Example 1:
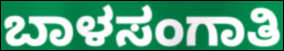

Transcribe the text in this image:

ಬಾಳಸಂಗಾತಿ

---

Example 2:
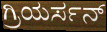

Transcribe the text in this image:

ಗ್ರಿಯರ್ಸನ್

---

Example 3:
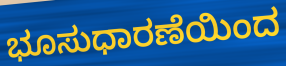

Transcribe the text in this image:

ಭೂಸುಧಾರಣೆಯಿಂದ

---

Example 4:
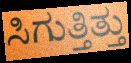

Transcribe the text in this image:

ಸಿಗುತ್ತಿತ್ತು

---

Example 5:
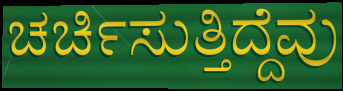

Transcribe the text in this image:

ಚರ್ಚಿಸುತ್ತಿದ್ದೆವು